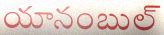
యానంబుల్